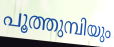
പൂത്തുമ്പിയും